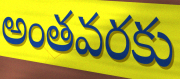
అంతవరకు